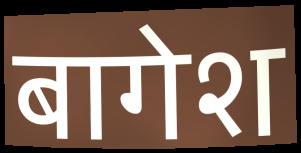
बागेश